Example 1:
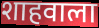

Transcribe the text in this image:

शाहवाला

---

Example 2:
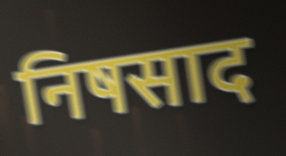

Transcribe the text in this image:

निषसाद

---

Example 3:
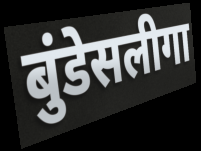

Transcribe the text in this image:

बुंडेसलीगा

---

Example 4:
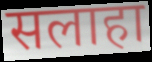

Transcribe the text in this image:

सलाहा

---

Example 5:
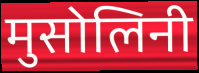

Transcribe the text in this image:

मुसोलिनी